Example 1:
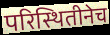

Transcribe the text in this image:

परिस्थितीनेच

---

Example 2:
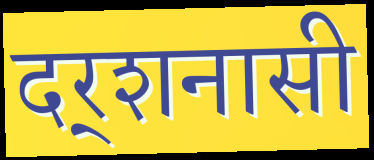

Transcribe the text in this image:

दर्शनासी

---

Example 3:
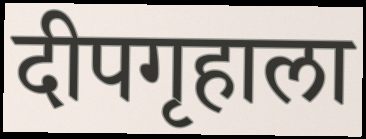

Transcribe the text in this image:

दीपगृहाला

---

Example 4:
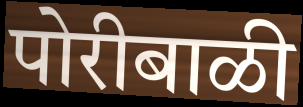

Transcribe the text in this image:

पोरीबाळी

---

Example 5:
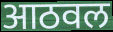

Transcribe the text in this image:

आठवल